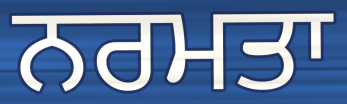
ਨਰਮਤਾ